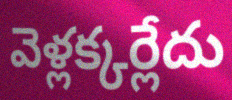
వెళ్లక్కర్లేదు